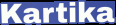
Kartika